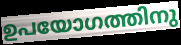
ഉപയോഗത്തിനു